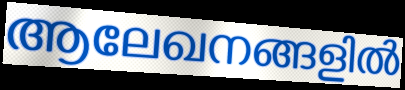
ആലേഖനങ്ങളിൽ